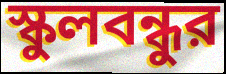
স্কুলবন্ধুর